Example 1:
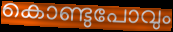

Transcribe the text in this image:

കൊണ്ടുപോവും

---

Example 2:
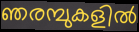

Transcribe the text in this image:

ഞരമ്പുകളിൽ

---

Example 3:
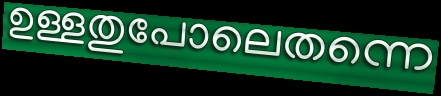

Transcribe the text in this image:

ഉള്ളതുപോലെതന്നെ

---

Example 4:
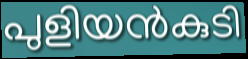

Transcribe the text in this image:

പുളിയൻകുടി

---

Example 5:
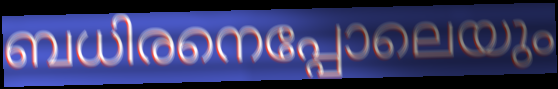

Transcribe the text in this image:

ബധിരനെപ്പോലെയും